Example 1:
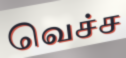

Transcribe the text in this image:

வெச்ச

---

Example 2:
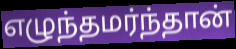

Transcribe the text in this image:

எழுந்தமர்ந்தான்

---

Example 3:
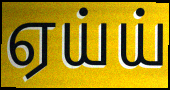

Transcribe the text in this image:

ஏய்ய்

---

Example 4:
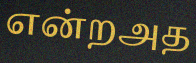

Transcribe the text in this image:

என்றஅத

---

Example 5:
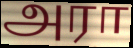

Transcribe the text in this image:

அரா